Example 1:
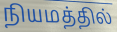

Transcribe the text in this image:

நியமத்தில்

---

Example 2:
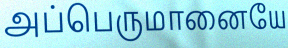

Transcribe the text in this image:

அப்பெருமானையே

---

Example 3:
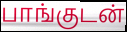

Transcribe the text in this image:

பாங்குடன்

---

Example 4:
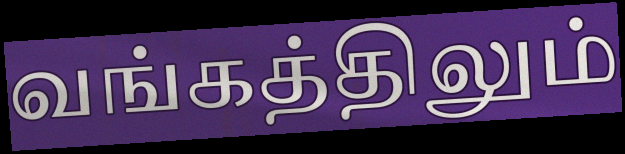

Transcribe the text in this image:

வங்கத்திலும்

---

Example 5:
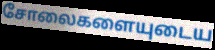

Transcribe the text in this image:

சோலைகளையுடைய